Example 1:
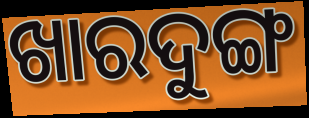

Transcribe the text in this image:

ଖାରଦୁଙ୍ଗ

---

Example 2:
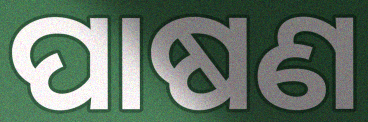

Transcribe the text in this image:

ପାଷଣ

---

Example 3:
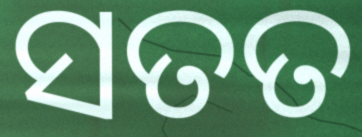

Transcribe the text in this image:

ସତତ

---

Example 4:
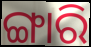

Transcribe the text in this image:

ଙ୍ଗାରି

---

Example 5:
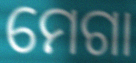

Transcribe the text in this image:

ମେଗା